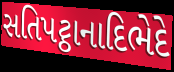
સતિપટ્ઠાનાદિભેદે